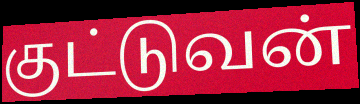
குட்டுவன்